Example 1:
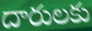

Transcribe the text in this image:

దారులకు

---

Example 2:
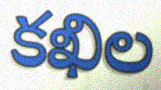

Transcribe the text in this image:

కఖిల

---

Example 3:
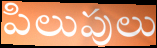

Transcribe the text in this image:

పిలుపులు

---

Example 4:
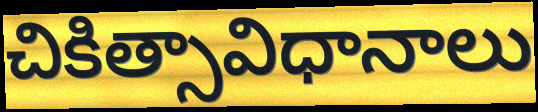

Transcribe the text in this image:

చికిత్సావిధానాలు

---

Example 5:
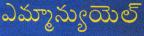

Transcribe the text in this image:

ఎమ్మాన్యుయెల్